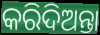
କରିଦିଅନ୍ତା